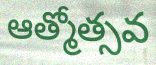
ఆత్మోత్సవ